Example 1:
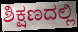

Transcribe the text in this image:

ಶಿಕ್ಷಣದಲ್ಲಿ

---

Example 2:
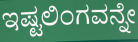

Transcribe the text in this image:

ಇಷ್ಟಲಿಂಗವನ್ನೇ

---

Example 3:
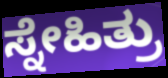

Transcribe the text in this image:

ಸ್ನೇಹಿತ್ರು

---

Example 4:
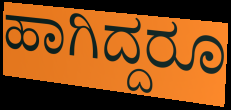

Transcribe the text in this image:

ಹಾಗಿದ್ದರೂ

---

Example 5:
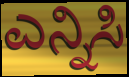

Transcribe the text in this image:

ಎನ್ನಿಸಿ